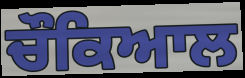
ਚੌਕਿਆਲ